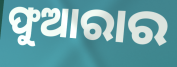
ଫୁଆରାର